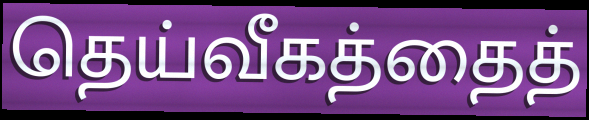
தெய்வீகத்தைத்